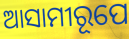
ଆସାମୀରୂପେ